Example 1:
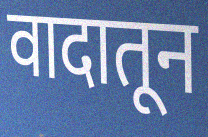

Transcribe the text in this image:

वादातून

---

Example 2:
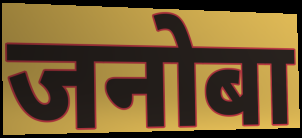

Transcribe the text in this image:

जनोबा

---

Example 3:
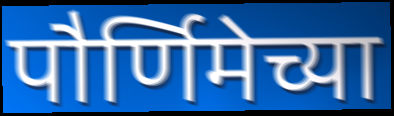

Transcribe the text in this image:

पौर्णिमेच्या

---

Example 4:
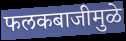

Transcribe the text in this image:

फलकबाजीमुळे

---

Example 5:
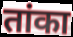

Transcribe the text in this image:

तांका